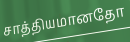
சாத்தியமானதோ